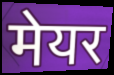
मेयर